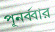
পূনর্ব্বার